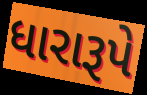
ધારારૂપે